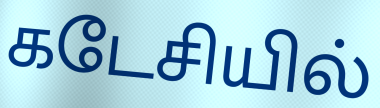
கடேசியில்